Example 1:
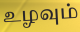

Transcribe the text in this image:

உழவும்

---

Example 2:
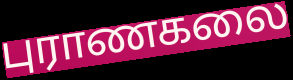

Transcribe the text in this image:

புராணகலை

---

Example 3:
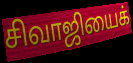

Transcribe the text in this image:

சிவாஜியைக்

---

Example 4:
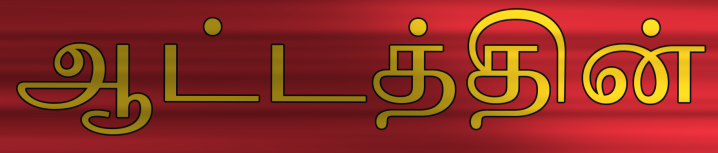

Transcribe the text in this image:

ஆட்டத்தின்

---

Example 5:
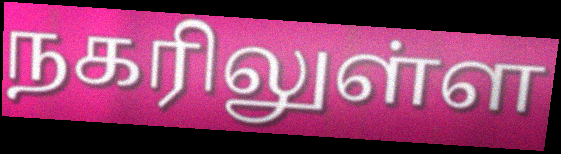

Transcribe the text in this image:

நகரிலுள்ள